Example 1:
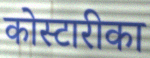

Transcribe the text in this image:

कोस्टारीका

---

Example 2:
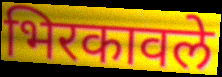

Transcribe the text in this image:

भिरकावले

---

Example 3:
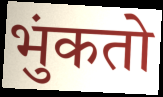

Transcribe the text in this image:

भुंकतो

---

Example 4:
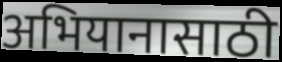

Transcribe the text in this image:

अभियानासाठी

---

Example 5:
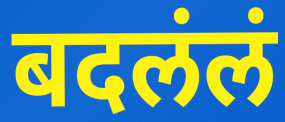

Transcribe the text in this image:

बदलंलं